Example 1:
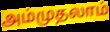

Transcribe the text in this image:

அம்முதலாம்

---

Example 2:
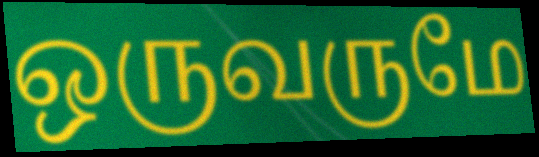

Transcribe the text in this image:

ஒருவருமே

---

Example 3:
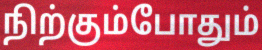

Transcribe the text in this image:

நிற்கும்போதும்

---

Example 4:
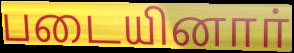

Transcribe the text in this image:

படையினார்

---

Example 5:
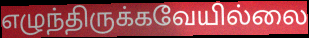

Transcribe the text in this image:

எழுந்திருக்கவேயில்லை